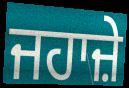
ਜਹਾਜ਼ੇ